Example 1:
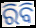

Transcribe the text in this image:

ରିବି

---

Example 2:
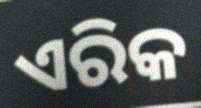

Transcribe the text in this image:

ଏରିକ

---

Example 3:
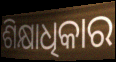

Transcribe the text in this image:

ଶିକ୍ଷାଧିକାର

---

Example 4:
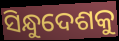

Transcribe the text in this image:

ସିନ୍ଧୁଦେଶକୁ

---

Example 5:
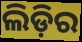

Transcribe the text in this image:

ଲିଡ଼ିର